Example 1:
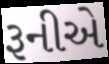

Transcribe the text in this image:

રૂનીએ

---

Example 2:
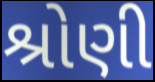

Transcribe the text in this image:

શ્રોણી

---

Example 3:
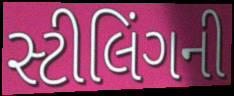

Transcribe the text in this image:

સ્ટીલિંગની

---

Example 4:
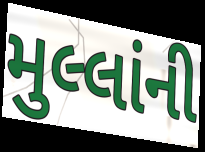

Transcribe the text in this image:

મુલ્લાંની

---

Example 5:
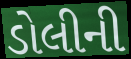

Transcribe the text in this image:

ડોલીની